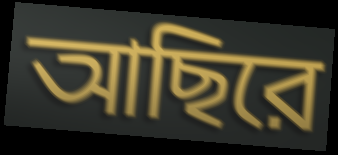
আছিরে